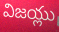
విజయ్లు